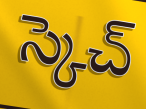
స్కెచ్